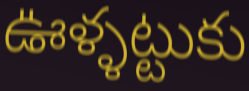
ఊళ్ళట్టుకు